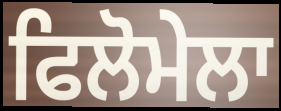
ਫਿਲੋਮੇਲਾ